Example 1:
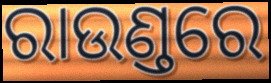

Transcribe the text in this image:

ରାଉଣ୍ଡରେ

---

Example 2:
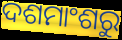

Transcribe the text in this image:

ଦଶମାଂଶରୁ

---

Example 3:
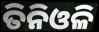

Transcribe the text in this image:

ତିନିଓଳି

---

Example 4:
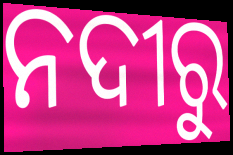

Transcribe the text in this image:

ନଦୀରୁ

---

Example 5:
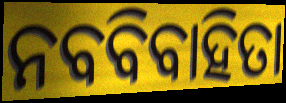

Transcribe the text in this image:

ନବବିବାହିତା